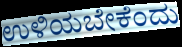
ಉಳಿಯಬೇಕೆಂದು